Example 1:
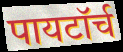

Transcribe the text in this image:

पायटॉर्च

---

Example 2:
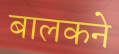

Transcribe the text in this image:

बालकने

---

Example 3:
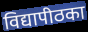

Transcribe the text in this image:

विद्यापीठका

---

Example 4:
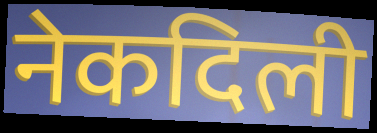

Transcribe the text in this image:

नेकदिली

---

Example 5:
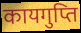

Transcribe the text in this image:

कायगुप्ति